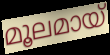
മൂലമായ്